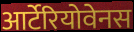
आर्टेरियोवेनस